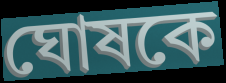
ঘোষকে